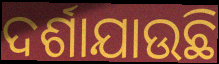
ଦର୍ଶାଯାଉଛି